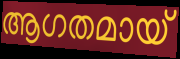
ആഗതമായ്